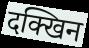
दक्खिन